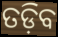
ତଡ଼ିବ